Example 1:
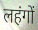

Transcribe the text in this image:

लहंगों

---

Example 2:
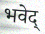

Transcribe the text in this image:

भवेद्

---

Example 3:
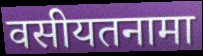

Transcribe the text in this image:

वसीयतनामा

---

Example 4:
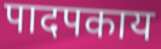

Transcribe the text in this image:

पादपकाय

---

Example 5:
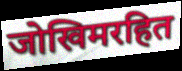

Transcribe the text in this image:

जोखिमरहित